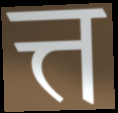
त्त